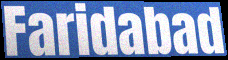
Faridabad